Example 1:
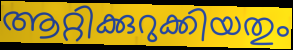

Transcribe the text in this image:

ആറ്റിക്കുറുക്കിയതും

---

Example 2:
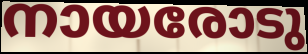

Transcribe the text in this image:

നായരോടു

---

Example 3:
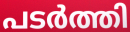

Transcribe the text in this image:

പടർത്തി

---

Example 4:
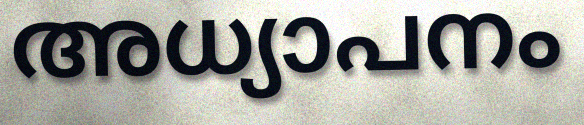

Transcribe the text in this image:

അധ്യാപനം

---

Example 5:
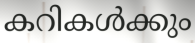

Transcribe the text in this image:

കറികൾക്കും